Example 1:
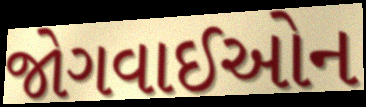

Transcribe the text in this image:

જોગવાઈઓન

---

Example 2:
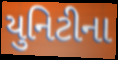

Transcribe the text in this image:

યુનિટીના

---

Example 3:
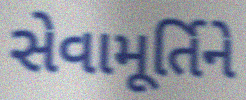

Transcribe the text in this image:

સેવામૂર્તિને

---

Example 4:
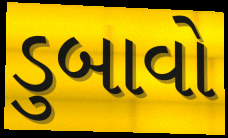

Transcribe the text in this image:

ડુબાવો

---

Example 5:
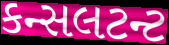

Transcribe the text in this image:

કન્સલટન્ટ